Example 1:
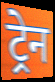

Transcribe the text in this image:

ट्रेन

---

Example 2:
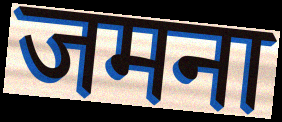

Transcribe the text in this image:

जमना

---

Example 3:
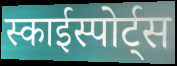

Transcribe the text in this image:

स्काईस्पोर्ट्स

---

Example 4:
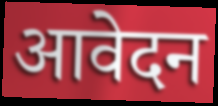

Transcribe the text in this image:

आवेदन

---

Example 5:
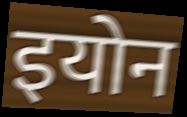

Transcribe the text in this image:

इयोन